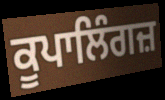
ਕੂਪਾਲਿੰਗਜ਼